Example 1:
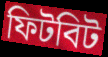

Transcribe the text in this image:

ফিটবিট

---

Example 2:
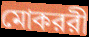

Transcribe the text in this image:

মোকররী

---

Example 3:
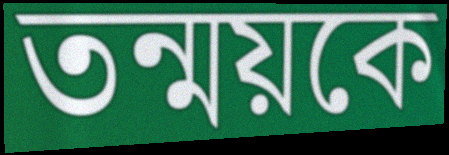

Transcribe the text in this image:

তন্ময়কে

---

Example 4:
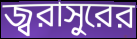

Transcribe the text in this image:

জ্বরাসুরের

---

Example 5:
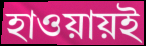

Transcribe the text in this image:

হাওয়ায়ই